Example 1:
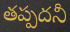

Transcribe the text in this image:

తప్పదనీ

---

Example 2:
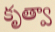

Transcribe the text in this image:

కృత్వా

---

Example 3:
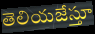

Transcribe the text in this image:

తెలియజేస్తూ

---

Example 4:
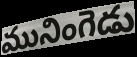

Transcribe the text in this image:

మునింగెడు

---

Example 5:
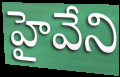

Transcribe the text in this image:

హైవేని